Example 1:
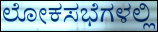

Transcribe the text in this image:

ಲೋಕಸಭೆಗಳಲ್ಲಿ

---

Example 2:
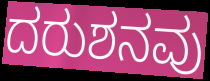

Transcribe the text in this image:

ದರುಶನವು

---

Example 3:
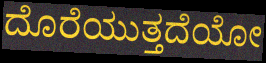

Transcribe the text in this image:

ದೊರೆಯುತ್ತದೆಯೋ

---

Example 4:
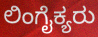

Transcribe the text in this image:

ಲಿಂಗೈಕ್ಯರು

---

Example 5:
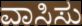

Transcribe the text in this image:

ವಾಸಿಸು